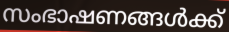
സംഭാഷണങ്ങൾക്ക്